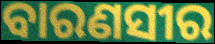
ବାରଣସୀର